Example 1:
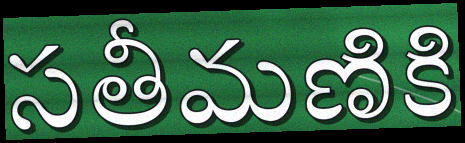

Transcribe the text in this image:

సతీమణికి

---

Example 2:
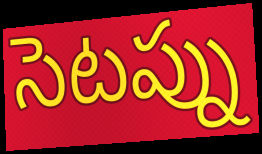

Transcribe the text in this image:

సెటప్ను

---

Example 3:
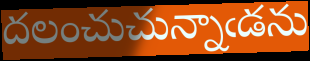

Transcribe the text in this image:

దలంచుచున్నాఁడను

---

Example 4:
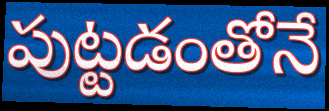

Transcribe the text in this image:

పుట్టడంతోనే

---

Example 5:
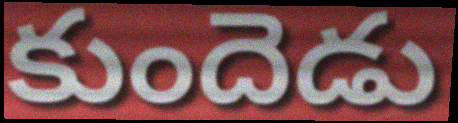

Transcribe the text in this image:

కుందెడు